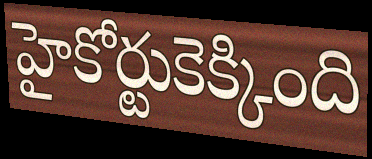
హైకోర్టుకెక్కింది